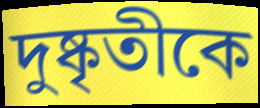
দুষ্কৃতীকে